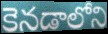
కెనడాలోని